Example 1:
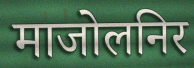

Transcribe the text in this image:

माजोलनिर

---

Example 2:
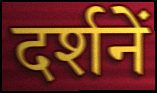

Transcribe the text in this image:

दर्शनें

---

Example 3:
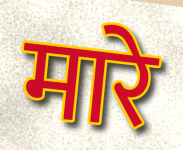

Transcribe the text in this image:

मारे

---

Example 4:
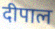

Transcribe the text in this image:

दीपाल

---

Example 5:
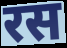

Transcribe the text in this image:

रस